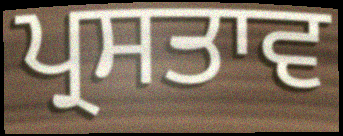
ਪ੍ਰਸਤਾਵ